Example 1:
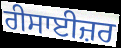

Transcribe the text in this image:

ਰੀਸਾਈਜ਼ਰ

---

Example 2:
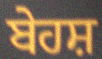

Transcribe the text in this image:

ਬੇਹਸ਼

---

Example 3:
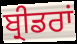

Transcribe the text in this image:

ਬ੍ਰੀਡਰਾਂ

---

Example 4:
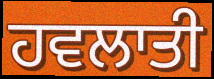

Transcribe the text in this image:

ਹਵਲਾਤੀ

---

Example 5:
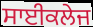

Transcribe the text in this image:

ਸਾਈਕਲੇਜ